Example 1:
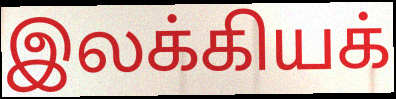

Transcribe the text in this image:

இலக்கியக்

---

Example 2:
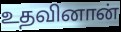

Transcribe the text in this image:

உதவினான்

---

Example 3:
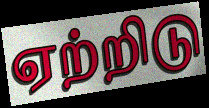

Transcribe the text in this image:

ஏற்றிடு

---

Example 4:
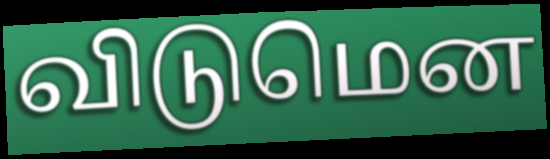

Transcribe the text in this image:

விடுமென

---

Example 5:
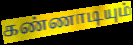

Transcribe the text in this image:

கண்ணாடியும்